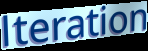
Iteration